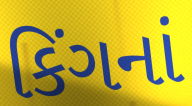
કિંગનાં